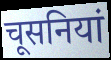
चूसनियां